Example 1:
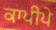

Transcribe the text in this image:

ਕਾਪੀਪੇ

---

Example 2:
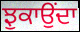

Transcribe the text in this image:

ਝੁਕਾਉਂਦਾ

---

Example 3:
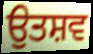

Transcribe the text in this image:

ਉਤਸ਼ਵ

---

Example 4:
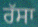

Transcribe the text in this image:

ਰੱਸਾ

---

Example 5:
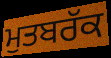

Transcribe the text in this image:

ਮੁਤਬਰੱਕ